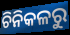
ଚିନିକଳରୁ